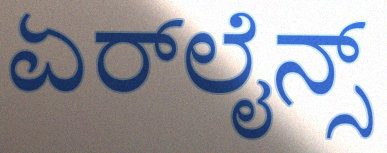
ಏರ್‌ಲೈನ್ಸ್